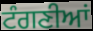
ਟੰਗਣੀਆਂ